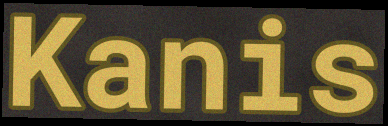
Kanis